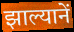
झाल्यानें